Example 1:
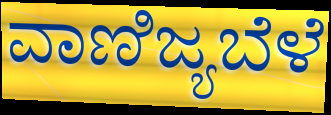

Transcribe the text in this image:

ವಾಣಿಜ್ಯಬೆಳೆ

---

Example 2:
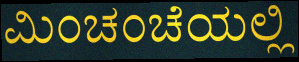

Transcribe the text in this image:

ಮಿಂಚಂಚೆಯಲ್ಲಿ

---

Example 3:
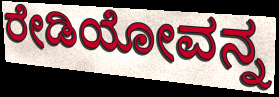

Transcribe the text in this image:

ರೇಡಿಯೋವನ್ನ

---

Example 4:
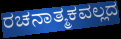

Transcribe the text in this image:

ರಚನಾತ್ಮಕವಲ್ಲದ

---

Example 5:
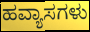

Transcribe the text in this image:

ಹವ್ಯಾಸಗಳು